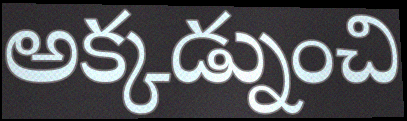
అక్కడ్నుంచి